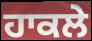
ਹਾਕਲੇ